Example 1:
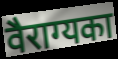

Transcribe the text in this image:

वैराग्यका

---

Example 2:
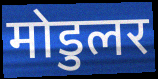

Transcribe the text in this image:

मोडुलर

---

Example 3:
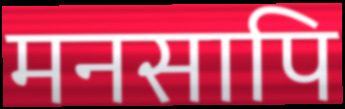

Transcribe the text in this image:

मनसापि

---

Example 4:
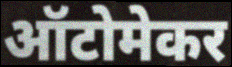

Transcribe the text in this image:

ऑटोमेकर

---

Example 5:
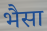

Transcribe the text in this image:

भैसा